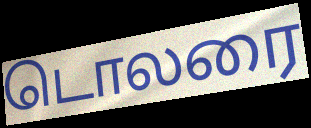
டொலரை